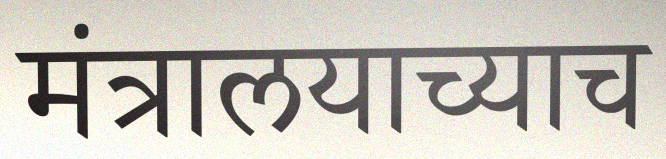
मंत्रालयाच्याच